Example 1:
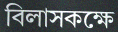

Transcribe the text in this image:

বিলাসকক্ষে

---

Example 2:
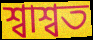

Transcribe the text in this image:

শ্বাশ্বত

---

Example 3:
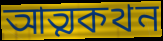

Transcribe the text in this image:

আত্মকথন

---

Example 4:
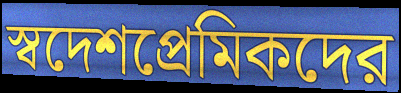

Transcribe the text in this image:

স্বদেশপ্রেমিকদের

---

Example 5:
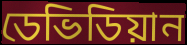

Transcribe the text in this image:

ডেভিডিয়ান